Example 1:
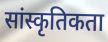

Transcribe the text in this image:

सांस्कृतिकता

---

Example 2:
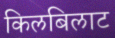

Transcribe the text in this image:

किलबिलाट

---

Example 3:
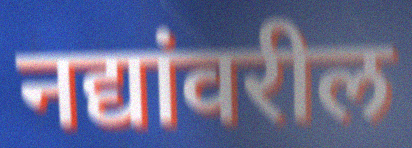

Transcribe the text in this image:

नद्यांवरील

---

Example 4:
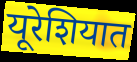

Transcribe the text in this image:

यूरेशियात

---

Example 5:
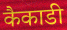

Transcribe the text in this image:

कैकाडी